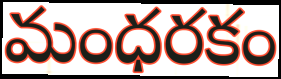
మంధరకం